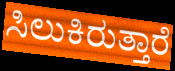
ಸಿಲುಕಿರುತ್ತಾರೆ